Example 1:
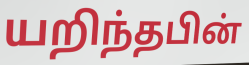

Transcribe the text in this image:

யறிந்தபின்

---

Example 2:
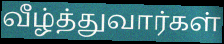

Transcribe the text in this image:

வீழ்த்துவார்கள்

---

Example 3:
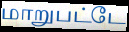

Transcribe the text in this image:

மாறுபட்டே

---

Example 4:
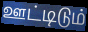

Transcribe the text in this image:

ஊட்டிடும்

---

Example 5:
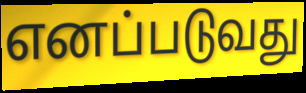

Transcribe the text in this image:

எனப்படுவது